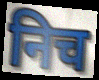
निच